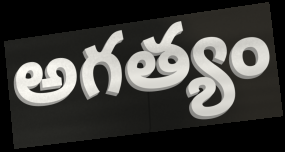
అగత్యం